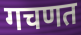
गचणत